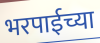
भरपाईच्या